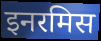
इनरमिस